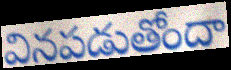
వినపడుతోందా